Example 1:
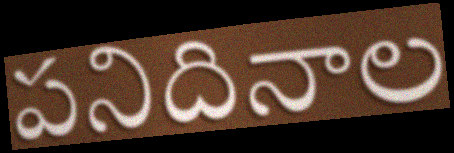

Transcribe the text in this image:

పనిదినాల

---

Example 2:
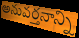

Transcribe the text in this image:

అనువర్తనాన్ని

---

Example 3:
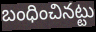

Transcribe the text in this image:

బంధించినట్టు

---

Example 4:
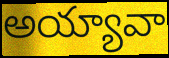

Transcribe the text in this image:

అయ్యావా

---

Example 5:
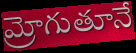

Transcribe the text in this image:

మ్రోగుతూనే